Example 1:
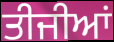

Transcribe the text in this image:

ਤੀਜੀਆਂ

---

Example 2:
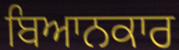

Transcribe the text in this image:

ਬਿਆਨਕਾਰ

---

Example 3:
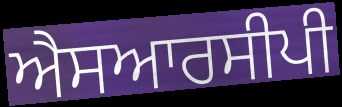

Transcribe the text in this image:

ਐਸਆਰਸੀਪੀ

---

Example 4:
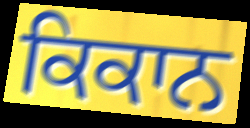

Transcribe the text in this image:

ਕਿਕਾਨ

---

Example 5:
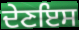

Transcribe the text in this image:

ਦੇਣਇਸ